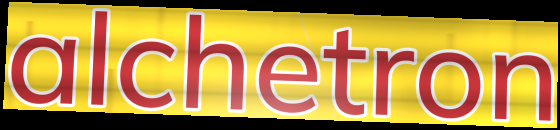
alchetron